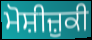
ਮੋਸ਼ੀਜ਼ੁਕੀ